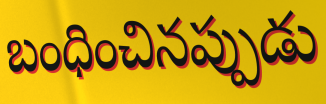
బంధించినప్పుడు